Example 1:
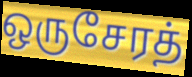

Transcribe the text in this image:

ஒருசேரத்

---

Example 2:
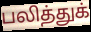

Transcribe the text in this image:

பலித்துக்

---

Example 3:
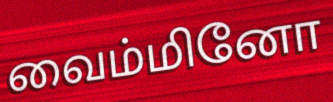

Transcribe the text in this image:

வைம்மினோ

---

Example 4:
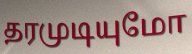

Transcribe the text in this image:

தரமுடியுமோ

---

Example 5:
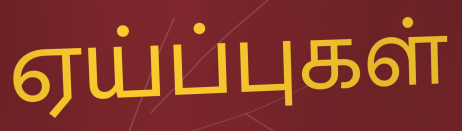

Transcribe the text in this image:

ஏய்ப்புகள்